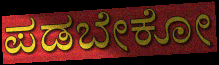
ಪಡಬೇಕೋ